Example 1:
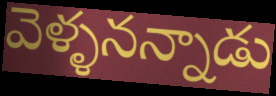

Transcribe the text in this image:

వెళ్ళనన్నాడు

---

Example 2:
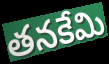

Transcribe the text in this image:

తనకేమి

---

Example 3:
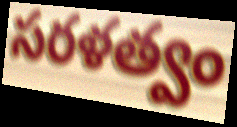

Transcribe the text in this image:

సరళత్వం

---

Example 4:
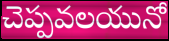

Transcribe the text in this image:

చెప్పవలయునో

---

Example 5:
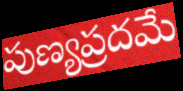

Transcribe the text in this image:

పుణ్యప్రదమే